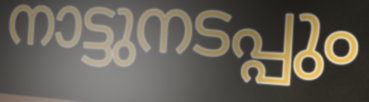
നാട്ടുനടപ്പും